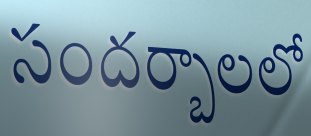
సందర్బాలలో